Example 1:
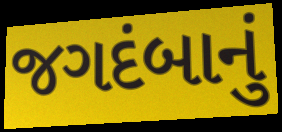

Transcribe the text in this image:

જગદંબાનું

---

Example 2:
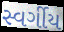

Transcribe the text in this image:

સ્વર્ગીય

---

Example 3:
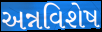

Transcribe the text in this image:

અન્નવિશેષ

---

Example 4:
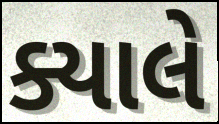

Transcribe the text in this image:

ક્યાલે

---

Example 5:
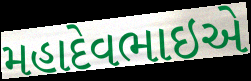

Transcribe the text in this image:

મહાદેવભાઇએ